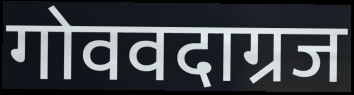
गोववदाग्रज